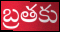
బ్రతకు